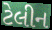
ટેલીન